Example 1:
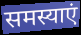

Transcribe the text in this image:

समस्याएं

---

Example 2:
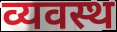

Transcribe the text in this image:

व्यवस्थ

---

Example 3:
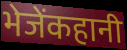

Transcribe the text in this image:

भेजेंकहानी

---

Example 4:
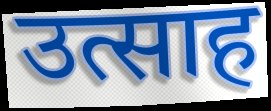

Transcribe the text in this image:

उत्साह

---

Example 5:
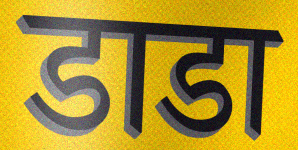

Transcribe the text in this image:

डाडा